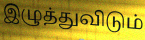
இழுத்துவிடும்